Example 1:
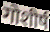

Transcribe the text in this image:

गोशीर्ष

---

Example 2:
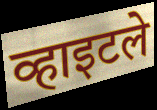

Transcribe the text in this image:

व्हाइटले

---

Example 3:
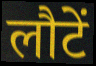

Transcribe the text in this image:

लौटें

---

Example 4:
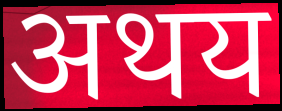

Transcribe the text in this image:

अथय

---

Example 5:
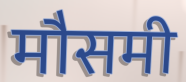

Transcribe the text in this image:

मौसमी